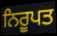
ਨਿਰੂਪਤ